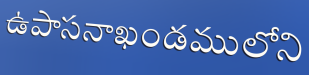
ఉపాసనాఖండములోని